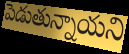
పెడుతున్నాయని